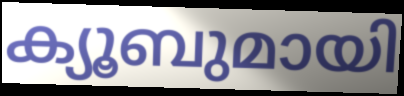
ക്യൂബുമായി